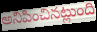
అనిపించినట్లుంది